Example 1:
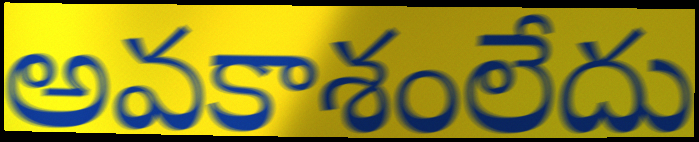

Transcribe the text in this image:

అవకాశంలేదు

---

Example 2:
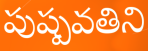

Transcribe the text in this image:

పుష్పవతిని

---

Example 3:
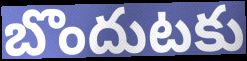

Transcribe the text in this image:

బొందుటకు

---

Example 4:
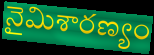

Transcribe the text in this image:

నైమిశారణ్యం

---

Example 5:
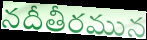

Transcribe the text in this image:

నదీతీరమున